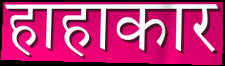
हाहाकार